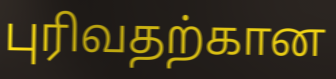
புரிவதற்கான